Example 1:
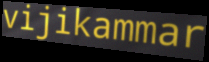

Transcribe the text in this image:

vijikammar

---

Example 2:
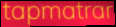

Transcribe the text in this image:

tapmatrar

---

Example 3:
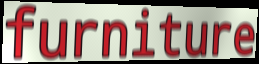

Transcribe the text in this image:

furniture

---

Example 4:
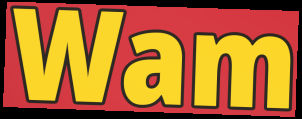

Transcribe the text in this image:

Wam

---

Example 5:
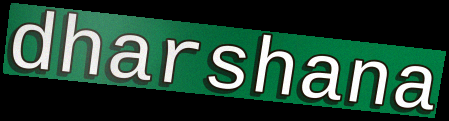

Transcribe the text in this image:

dharshana